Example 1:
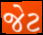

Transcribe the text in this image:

જેટ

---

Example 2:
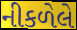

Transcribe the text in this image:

નીકળેલે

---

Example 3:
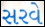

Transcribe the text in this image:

સરવે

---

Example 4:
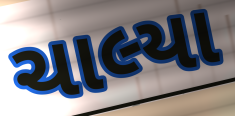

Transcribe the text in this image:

ચાલ્યા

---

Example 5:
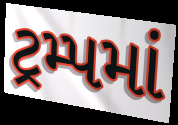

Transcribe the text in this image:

ટ્રમ્પમાં